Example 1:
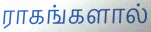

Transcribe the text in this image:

ராகங்களால்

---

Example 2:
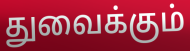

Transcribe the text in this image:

துவைக்கும்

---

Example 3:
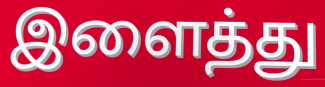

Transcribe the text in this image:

இளைத்து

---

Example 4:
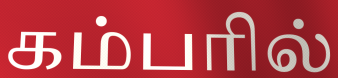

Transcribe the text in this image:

கம்பரில்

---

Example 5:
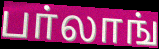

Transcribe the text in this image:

பர்லாங்